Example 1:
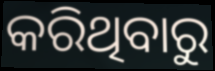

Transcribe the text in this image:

କରିଥିବାରୁ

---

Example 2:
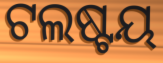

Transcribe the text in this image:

ଟଲଷ୍ଟୟ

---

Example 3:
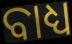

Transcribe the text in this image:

ବାଧ୍ୟ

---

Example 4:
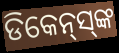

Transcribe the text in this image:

ଡିକେନ୍‌ସ୍‌ଙ୍କ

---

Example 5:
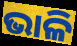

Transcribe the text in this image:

ଭାଳି